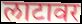
लाटावर